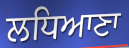
ਲਧਿਆਣਾ